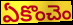
ఏకొంచెం